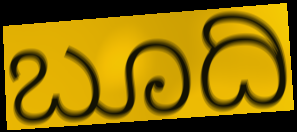
ಬೂದಿ